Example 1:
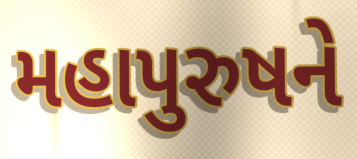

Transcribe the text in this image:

મહાપુરુષને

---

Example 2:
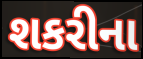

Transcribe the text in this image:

શકરીના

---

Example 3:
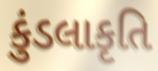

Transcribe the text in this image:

કુંડલાકૃતિ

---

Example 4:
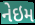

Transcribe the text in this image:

નેઇમ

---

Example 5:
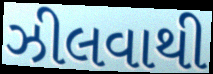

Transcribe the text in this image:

ઝીલવાથી